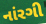
નાંરગી